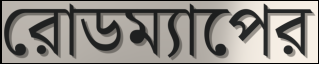
রোডম্যাপের